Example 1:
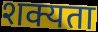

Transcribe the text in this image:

शक्यता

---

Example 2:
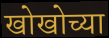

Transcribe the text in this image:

खोखोच्या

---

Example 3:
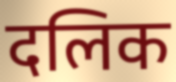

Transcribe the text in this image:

दलिक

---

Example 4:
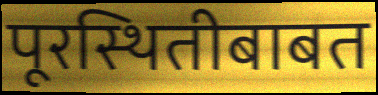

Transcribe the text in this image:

पूरस्थितीबाबत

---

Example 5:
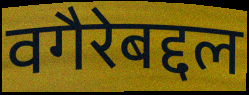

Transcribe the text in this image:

वगैरेबद्दल